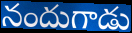
నందుగాడు